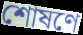
শোষণে